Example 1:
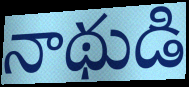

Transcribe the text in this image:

నాథుడి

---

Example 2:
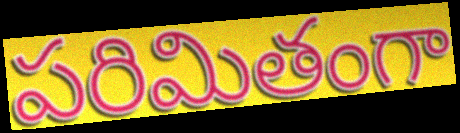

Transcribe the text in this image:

పరిమితంగా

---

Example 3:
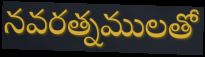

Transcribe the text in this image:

నవరత్నములతో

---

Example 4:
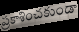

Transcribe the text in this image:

ప్రకాశించకుండా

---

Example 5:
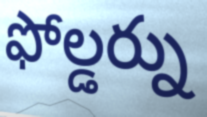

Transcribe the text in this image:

ఫోల్డర్ను